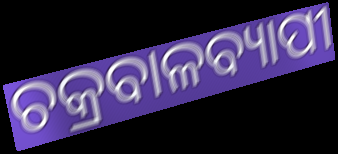
ଚକ୍ରବାଳବ୍ୟାପୀ